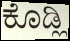
ಕೊಡ್ಲಿ